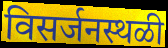
विसर्जनस्थळी